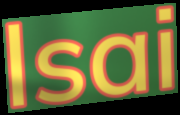
Isai